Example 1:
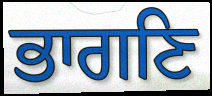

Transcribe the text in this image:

ਭਾਗਣਿ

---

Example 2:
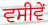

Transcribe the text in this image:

ਵਸੀਵੇਂ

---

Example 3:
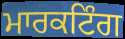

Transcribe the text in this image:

ਮਾਰਕਟਿੰਗ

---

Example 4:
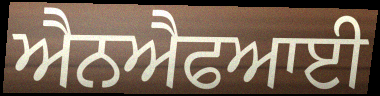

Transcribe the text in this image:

ਐਨਐਫਆਈ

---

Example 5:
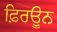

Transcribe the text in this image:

ਫ਼ਿਰਊਨ